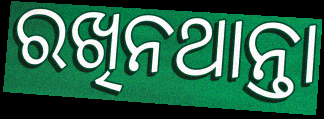
ରଖିନଥାନ୍ତା